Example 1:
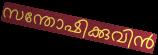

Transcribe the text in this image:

സന്തോഷിക്കുവിൻ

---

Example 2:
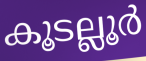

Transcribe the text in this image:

കൂടല്ലൂർ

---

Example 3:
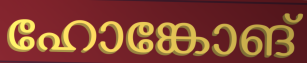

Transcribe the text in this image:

ഹോങ്കോങ്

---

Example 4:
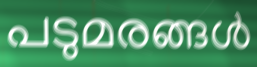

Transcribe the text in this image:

പടുമരങ്ങൾ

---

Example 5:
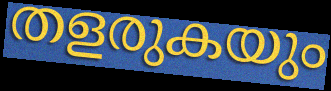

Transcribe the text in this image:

തളരുകയും